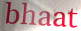
bhaat